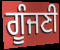
ਗੂੰਜਣੀ